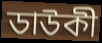
ডাউকী